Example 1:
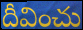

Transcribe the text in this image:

దీవించు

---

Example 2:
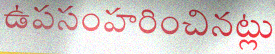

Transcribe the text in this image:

ఉపసంహరించినట్లు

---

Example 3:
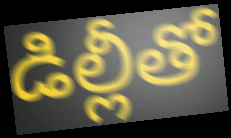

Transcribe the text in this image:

డిల్లీతో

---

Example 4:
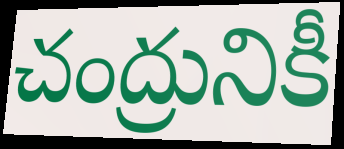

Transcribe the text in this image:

చంద్రునికీ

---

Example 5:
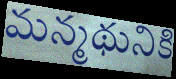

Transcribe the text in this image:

మన్మథునికి